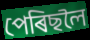
পেৰিছলৈ